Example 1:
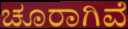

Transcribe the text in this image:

ಚೂರಾಗಿವೆ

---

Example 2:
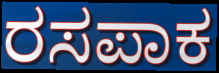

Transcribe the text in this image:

ರಸಪಾಕ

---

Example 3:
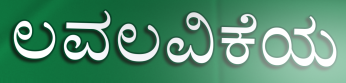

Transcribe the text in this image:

ಲವಲವಿಕೆಯ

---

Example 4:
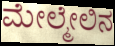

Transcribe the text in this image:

ಮೇಲ್ಮೇಲಿನ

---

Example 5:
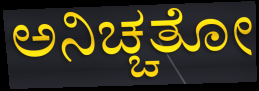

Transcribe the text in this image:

ಅನಿಚ್ಚತೋ